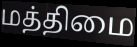
மத்திமை